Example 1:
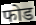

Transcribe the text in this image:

फोड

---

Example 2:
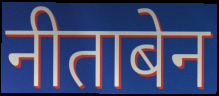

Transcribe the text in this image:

नीताबेन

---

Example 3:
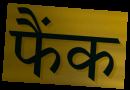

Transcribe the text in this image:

फैंक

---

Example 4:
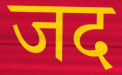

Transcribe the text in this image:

जद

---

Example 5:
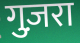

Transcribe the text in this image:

गुज़रा